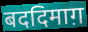
बददिमाग़